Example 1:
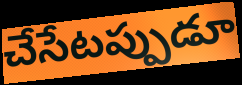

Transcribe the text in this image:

చేసేటప్పుడూ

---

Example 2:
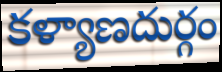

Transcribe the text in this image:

కళ్యాణదుర్గం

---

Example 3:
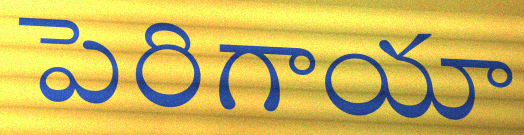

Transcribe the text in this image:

పెరిగాయా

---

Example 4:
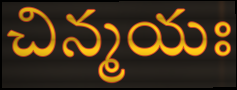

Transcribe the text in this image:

చిన్మయః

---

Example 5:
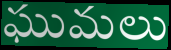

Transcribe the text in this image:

ఘుమలు